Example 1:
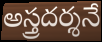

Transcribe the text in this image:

అస్త్రదర్శనే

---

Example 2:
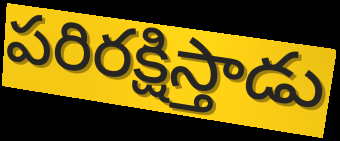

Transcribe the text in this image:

పరిరక్షిస్తాడు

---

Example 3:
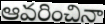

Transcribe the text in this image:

ఆవరించినా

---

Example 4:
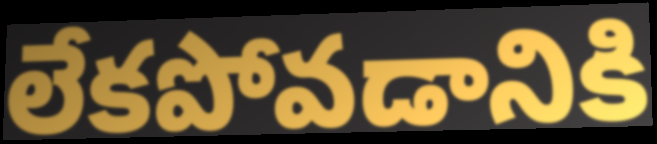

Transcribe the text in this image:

లేకపోవడానికి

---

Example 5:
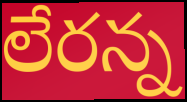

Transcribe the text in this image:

లేరన్న